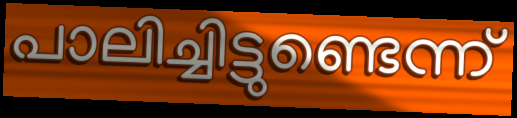
പാലിച്ചിട്ടുണ്ടെന്ന്